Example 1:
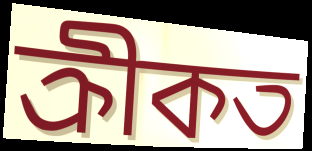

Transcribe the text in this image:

ক্ৰীকত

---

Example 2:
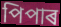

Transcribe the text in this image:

পিপাৰ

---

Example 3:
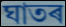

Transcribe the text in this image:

ঘাতৰ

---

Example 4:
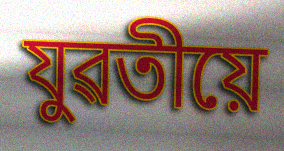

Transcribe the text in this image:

যুৱতীয়ে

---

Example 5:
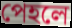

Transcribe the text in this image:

পেহলে